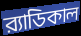
র‍্যাডিকাল